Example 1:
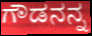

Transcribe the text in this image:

ಗೌಡನನ್ನ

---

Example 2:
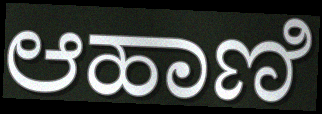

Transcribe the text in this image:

ಆಹಾಣಿ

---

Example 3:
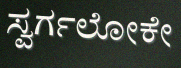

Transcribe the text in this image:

ಸ್ವರ್ಗಲೋಕೇ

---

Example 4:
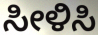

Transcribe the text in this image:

ಸೀಳಿಸಿ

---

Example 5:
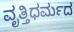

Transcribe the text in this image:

ವೃತ್ತಿಧರ್ಮದ